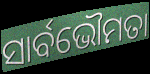
ସାର୍ବଭୌମତା